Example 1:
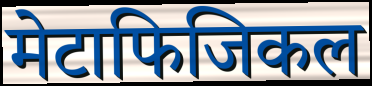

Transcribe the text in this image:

मेटाफिजिकल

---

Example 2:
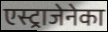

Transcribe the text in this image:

एस्ट्राजेनेका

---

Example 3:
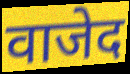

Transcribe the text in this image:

वाजेद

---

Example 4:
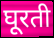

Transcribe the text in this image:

घूरती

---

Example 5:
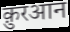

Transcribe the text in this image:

क़ुरआन